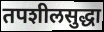
तपशीलसुद्धा